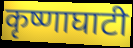
कृष्णाघाटी